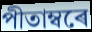
পীতাম্বৰে